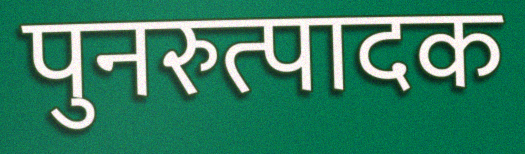
पुनरुत्पादक